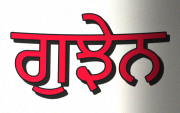
ਗੁਝੇਨ